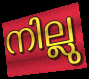
നില്ലു